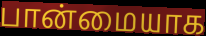
பான்மையாக